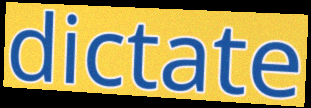
dictate